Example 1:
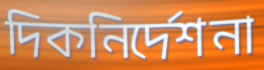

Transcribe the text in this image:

দিকনির্দেশনা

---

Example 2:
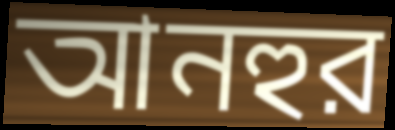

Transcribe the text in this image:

আনহুর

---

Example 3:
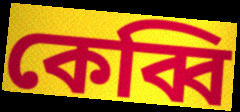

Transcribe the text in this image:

কেব্বি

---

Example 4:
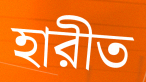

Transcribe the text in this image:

হারীত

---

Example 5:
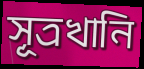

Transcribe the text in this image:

সূত্রখানি